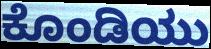
ಕೊಂಡಿಯು